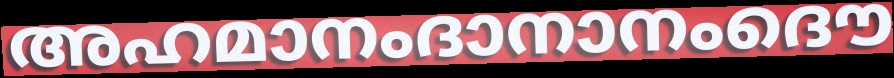
അഹമാനംദാനാനംദൌ